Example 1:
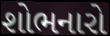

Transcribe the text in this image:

શોભનારો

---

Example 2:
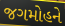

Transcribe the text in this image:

જગમોહને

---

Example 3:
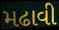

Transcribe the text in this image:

મઢાવી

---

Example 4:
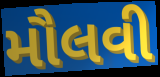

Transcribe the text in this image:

મૌલવી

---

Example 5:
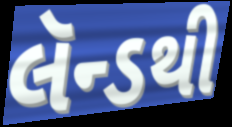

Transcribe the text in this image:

લૅન્ડથી